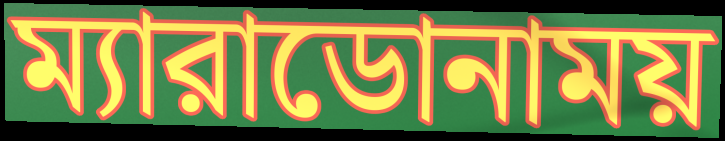
ম্যারাডোনাময়